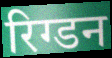
रिग्डन